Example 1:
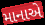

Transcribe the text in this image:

માનાએ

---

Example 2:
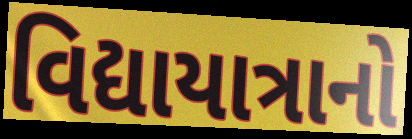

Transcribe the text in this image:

વિદ્યાયાત્રાનો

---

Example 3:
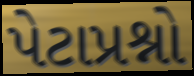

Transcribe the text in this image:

પેટાપ્રશ્નો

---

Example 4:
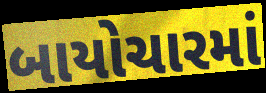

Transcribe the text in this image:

બાયોચારમાં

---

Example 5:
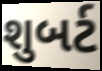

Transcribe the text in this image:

શુબર્ટ